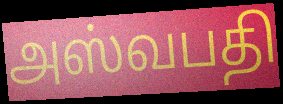
அஸ்வபதி